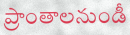
ప్రాంతాలనుండీ